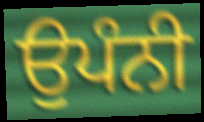
ਉਪੰਨੀ